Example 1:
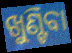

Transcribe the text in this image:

ଖୁଣ୍ଟିବା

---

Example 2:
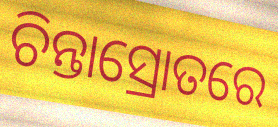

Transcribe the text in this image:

ଚିନ୍ତାସ୍ରୋତରେ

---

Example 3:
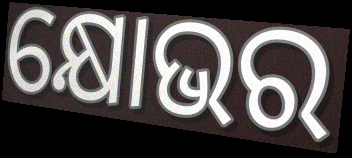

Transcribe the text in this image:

କ୍ଷୋଭର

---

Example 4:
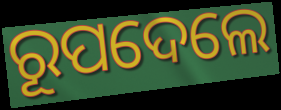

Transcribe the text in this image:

ରୂପଦେଲେ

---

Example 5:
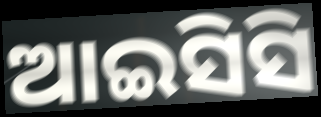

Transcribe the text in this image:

ଆଇସିସି